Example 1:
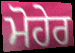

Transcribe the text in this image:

ਮੋਹੇਰ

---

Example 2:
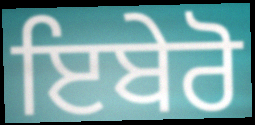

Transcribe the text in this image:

ਇਬੇਰੋ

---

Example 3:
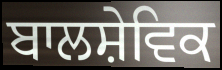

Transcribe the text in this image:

ਬਾਲਸ਼ੇਵਿਕ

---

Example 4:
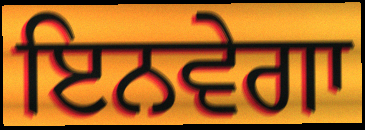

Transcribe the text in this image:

ਇਨਵੇਗਾ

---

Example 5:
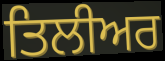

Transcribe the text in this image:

ਤਿਲੀਅਰ